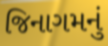
જિનાગમનું